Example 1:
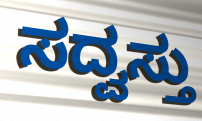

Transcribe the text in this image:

ಸದ್ವಸ್ತು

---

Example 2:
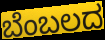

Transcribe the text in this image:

ಬೆಂಬಲದ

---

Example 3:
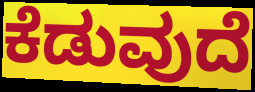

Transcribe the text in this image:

ಕೆಡುವುದೆ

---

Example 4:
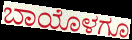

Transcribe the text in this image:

ಬಾಯೊಳಗೂ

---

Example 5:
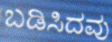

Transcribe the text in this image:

ಬಡಿಸಿದವು